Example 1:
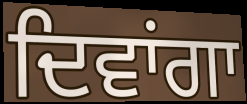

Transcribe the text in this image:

ਦਿਵਾਂਗਾ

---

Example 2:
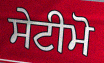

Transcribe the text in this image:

ਸੇਟੀਮੋ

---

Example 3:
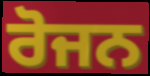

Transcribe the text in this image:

ਰੋਜਨ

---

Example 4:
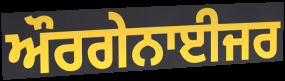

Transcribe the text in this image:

ਔਰਗੇਨਾਈਜਰ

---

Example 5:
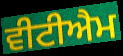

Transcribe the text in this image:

ਵੀਟੀਐਮ